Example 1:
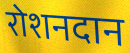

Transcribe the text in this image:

रोशनदान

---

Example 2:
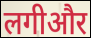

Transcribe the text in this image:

लगीऔर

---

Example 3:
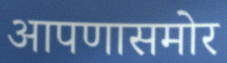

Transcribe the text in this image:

आपणासमोर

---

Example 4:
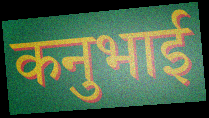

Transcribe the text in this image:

कनुभाई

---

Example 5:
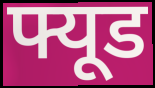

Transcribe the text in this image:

फ्यूड